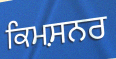
ਕਿਮ਼ਸਨਰ